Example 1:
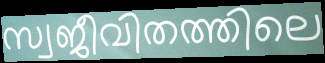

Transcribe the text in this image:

സ്വജീവിതത്തിലെ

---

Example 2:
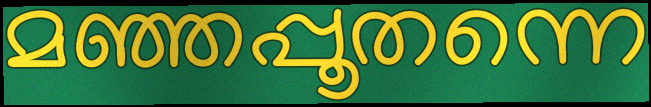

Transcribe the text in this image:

മഞ്ഞപ്പൂതന്നെ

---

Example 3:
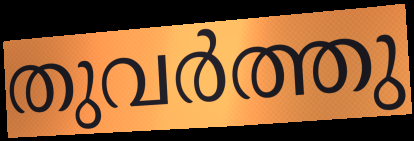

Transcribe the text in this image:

തുവർത്തു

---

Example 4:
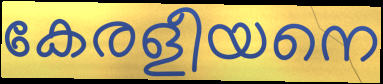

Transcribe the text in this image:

കേരളീയനെ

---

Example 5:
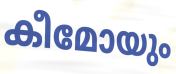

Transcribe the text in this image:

കീമോയും